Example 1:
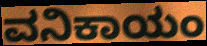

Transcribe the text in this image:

ವನಿಕಾಯಂ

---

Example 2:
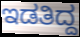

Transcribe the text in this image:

ಇಡತಿದ್ದ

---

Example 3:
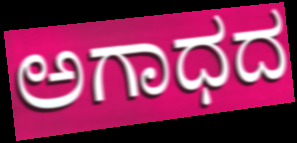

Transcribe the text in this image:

ಅಗಾಧದ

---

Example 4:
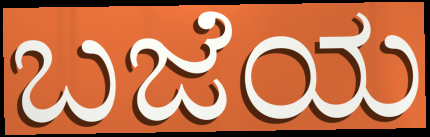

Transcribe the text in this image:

ಬಜೆಯ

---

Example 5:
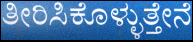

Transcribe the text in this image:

ತೀರಿಸಿಕೊಳ್ಳುತ್ತೇನೆ